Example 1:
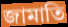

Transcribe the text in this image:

জামাতি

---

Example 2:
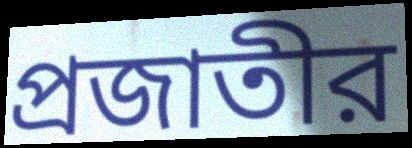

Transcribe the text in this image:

প্রজাতীর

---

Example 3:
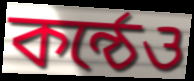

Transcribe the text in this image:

কন্ঠেও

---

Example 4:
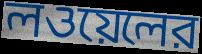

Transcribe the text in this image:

লওয়েলের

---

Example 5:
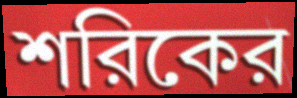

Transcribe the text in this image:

শরিকের